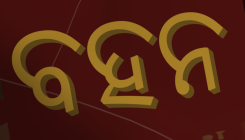
ବହନ